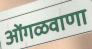
ओंगळवाणा